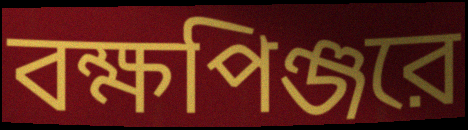
বক্ষপিঞ্জরে